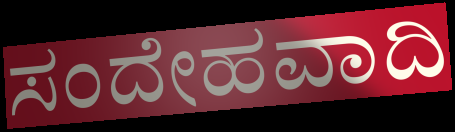
ಸಂದೇಹವಾದಿ